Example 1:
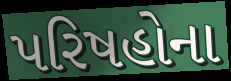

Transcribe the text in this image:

પરિષહોના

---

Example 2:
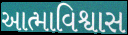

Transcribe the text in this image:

આત્માવિશ્વાસ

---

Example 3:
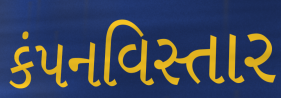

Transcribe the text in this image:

કંપનવિસ્તાર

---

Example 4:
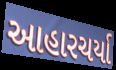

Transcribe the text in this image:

આહારચર્યા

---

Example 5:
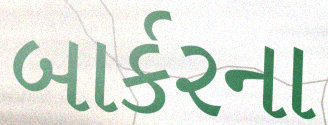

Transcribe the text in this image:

બાર્કરના